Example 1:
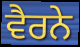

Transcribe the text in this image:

ਵੈਰਨੇ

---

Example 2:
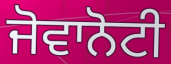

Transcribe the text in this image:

ਜੋਵਾਨੋਟੀ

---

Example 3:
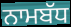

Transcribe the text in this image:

ਨਾਮਬੱਧ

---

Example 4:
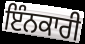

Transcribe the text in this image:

ਇੰਨਕਾਰੀ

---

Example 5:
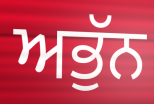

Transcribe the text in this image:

ਅਭੁੱਨ